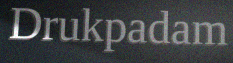
Drukpadam